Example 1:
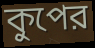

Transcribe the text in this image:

কুপের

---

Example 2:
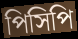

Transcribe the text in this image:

পিসিপি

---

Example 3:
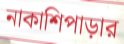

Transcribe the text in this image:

নাকাশিপাড়ার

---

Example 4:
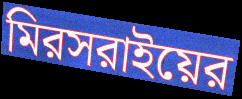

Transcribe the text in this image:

মিরসরাইয়ের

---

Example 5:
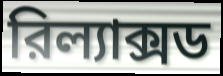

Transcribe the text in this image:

রিল্যাক্সড